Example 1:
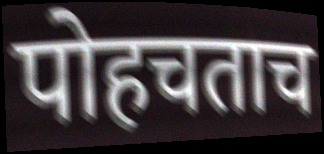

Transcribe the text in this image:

पोहचताच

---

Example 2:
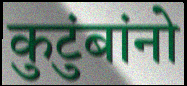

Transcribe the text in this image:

कुटुंबांनो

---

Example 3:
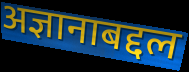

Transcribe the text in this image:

अज्ञानाबद्दल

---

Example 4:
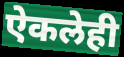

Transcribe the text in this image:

ऐकलेही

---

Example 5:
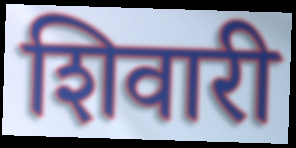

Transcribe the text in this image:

शिवारी